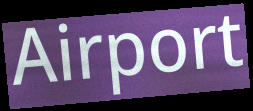
Airport